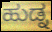
ಹುಡ್ನ